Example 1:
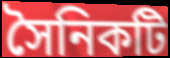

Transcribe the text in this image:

সৈনিকটি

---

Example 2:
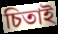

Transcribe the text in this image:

চিতাই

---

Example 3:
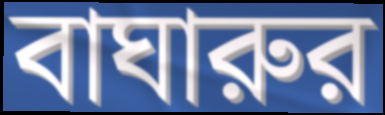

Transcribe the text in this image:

বাঘারুর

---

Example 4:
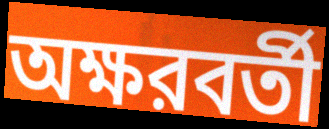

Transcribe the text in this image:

অক্ষরবর্তী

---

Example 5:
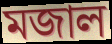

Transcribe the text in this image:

মজাল